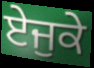
ਏਜੁਕੇ